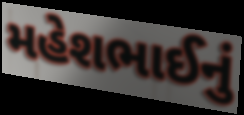
મહેશભાઈનું